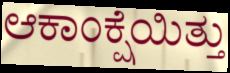
ಆಕಾಂಕ್ಷೆಯಿತ್ತು